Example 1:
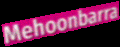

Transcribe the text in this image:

Mehoonbarra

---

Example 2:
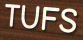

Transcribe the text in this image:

TUFS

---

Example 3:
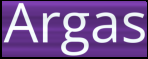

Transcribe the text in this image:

Argas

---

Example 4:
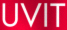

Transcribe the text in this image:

UVIT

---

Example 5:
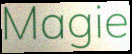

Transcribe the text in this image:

Magie